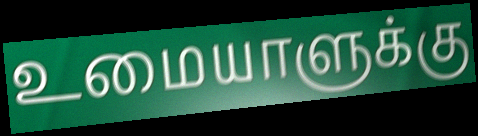
உமையாளுக்கு